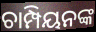
ଚାମ୍ପିୟନଙ୍କ